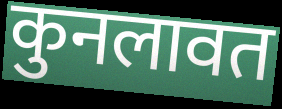
कुनलावत